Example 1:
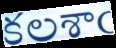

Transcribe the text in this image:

కలశాఁ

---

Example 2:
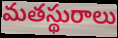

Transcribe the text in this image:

మతస్థురాలు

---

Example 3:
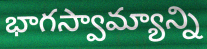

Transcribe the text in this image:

భాగస్వామ్యాన్ని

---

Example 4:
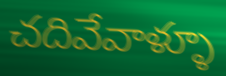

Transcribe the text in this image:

చదివేవాళ్ళూ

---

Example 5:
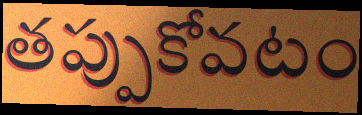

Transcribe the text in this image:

తప్పుకోవటం